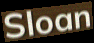
Sloan